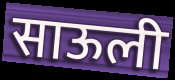
साऊली